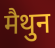
मैथुन